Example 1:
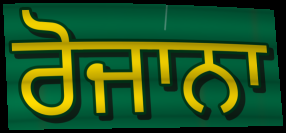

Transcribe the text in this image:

ਰੋਜਾਨਾ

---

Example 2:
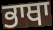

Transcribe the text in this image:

ਭਾਥਾ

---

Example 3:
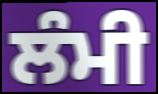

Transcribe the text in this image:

ਲੰਮੀ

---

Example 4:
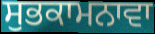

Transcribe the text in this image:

ਸੁਭਕਾਮਨਾਵਾ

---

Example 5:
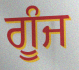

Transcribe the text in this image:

ਗੂੰਜ